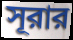
সূরার